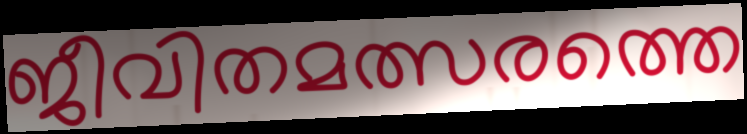
ജീവിതമത്സരത്തെ